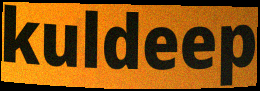
kuldeep